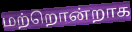
மற்றொன்றாக